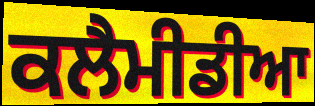
ਕਲੈਮੀਡੀਆ